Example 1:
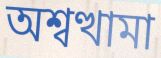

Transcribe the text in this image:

অশ্বত্থামা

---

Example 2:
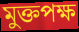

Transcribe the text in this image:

মুক্তপক্ষ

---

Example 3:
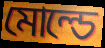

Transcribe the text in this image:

মোল্ডে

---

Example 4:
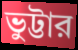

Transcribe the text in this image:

ভুট্টার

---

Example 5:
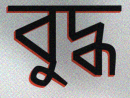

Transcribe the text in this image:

বুদ্ধ